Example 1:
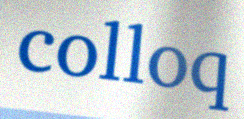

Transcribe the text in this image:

colloq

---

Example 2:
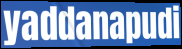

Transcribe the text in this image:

yaddanapudi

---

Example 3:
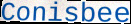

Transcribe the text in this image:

Conisbee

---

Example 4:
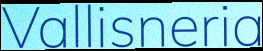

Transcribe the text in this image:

Vallisneria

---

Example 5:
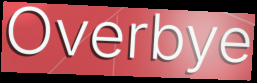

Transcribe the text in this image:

Overbye